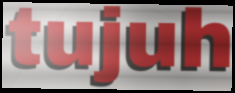
tujuh